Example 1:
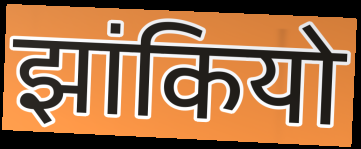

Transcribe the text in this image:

झांकियो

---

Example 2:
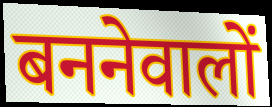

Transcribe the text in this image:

बननेवालों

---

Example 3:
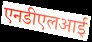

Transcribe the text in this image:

एनडीएलआई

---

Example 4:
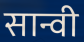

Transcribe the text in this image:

सान्वी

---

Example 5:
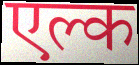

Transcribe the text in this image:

एल्क